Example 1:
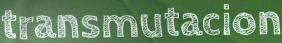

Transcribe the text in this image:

transmutacion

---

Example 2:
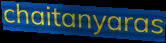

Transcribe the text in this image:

chaitanyaras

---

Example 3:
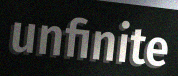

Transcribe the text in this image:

unfinite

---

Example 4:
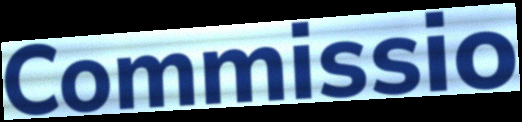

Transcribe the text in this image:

Commissio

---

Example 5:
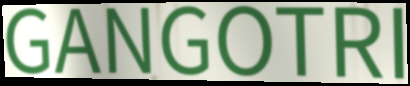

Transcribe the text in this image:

GANGOTRI